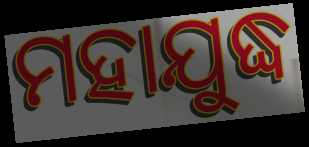
ମହାଯୁଦ୍ଧ